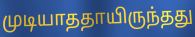
முடியாததாயிருந்தது